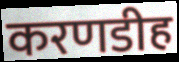
करणडीह